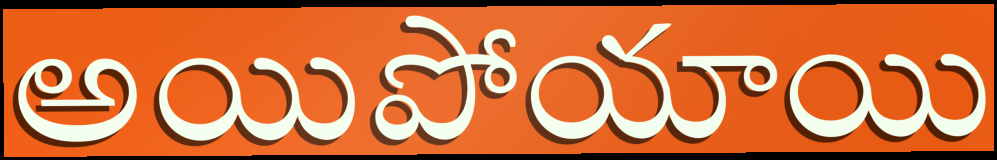
అయిపోయాయి